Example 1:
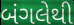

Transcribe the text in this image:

બંગલેથી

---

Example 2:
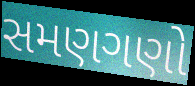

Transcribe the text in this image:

સમણગણો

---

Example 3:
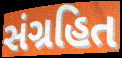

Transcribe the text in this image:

સંગ્રહિત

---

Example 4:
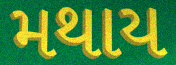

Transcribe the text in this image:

મથાય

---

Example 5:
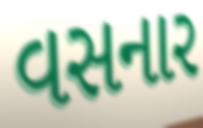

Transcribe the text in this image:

વસનાર